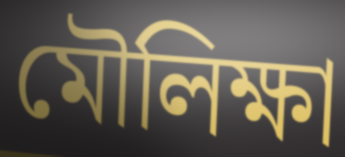
মৌলিক্ষা